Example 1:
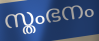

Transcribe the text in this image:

സ്തംഭനം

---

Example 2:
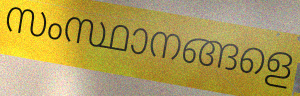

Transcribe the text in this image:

സംസ്ഥാനങ്ങളെ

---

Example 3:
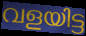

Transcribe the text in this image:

വളയിട്ട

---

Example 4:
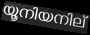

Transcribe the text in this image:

യൂനിയനില്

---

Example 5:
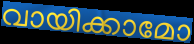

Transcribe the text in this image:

വായിക്കാമോ